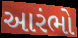
આરંભો